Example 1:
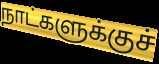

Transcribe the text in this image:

நாட்களுக்குச்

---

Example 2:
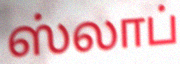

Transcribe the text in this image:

ஸ்லாப்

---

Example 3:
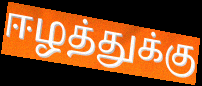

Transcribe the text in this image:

ஈழத்துக்கு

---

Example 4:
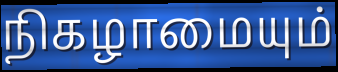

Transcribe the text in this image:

நிகழாமையும்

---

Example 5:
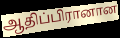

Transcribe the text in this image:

ஆதிப்பிரானான